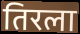
तिरला